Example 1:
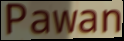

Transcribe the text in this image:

Pawan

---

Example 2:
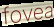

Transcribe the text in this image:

fovea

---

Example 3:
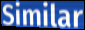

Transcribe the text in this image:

Similar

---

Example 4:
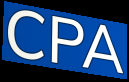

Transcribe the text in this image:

CPA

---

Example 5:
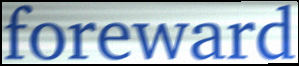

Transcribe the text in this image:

foreward